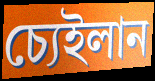
চ্যেইলান